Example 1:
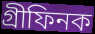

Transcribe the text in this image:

গ্ৰীফিনক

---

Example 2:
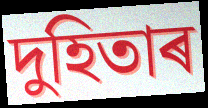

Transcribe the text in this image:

দুহিতাৰ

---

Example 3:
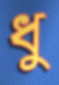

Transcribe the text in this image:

ধু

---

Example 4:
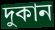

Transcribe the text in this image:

দুকান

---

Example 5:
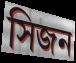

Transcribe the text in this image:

সিজন